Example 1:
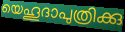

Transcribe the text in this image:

യെഹൂദാപുത്രിക്കു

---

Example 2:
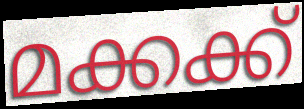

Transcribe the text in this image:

മക്കക്ക്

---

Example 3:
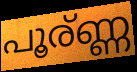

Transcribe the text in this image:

പൂര്ണ്ണ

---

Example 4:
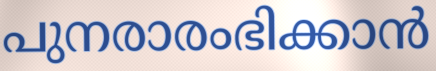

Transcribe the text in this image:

പുനരാരംഭിക്കാൻ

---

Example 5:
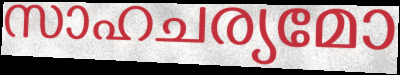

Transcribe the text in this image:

സാഹചര്യമോ